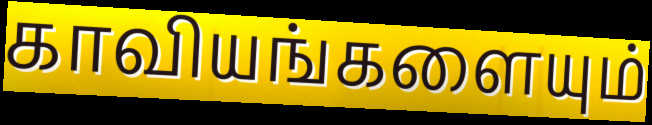
காவியங்களையும்